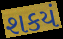
શકયં